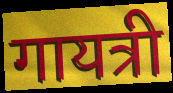
गायत्री